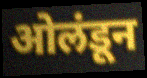
ओलंडून